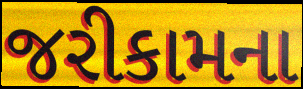
જરીકામના